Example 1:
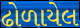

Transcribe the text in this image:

ઢોળાયેલ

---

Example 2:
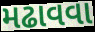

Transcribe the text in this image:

મઢાવવા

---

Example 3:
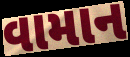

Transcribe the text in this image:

વામાન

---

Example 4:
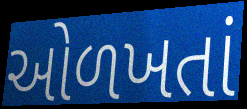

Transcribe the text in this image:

ઓળખતાં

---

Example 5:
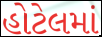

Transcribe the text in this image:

હોટેલમાં